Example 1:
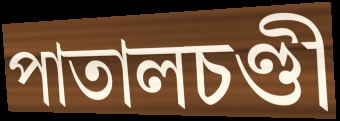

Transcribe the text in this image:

পাতালচণ্ডী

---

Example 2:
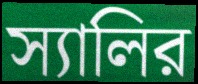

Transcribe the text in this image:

স্যালির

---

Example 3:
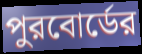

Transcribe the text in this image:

পুরবোর্ডের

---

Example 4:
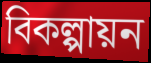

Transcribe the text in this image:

বিকল্পায়ন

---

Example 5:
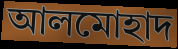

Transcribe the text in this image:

আলমোহাদ